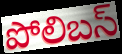
పోలిబస్